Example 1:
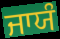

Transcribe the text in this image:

ਜਾਯੰ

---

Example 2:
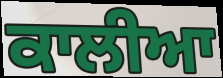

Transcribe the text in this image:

ਕਾਲੀਆ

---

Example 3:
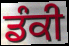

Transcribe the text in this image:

ਡੰਕੀ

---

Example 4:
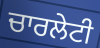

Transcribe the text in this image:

ਚਾਰਲੇਟੀ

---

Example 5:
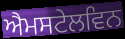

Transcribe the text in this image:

ਐਮਸਟੇਲਵਿਨ